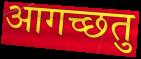
आगच्छतु